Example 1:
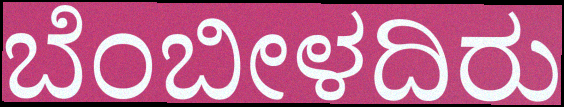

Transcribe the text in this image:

ಬೆಂಬೀಳದಿರು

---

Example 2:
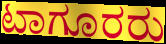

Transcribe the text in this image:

ಟಾಗೂರರು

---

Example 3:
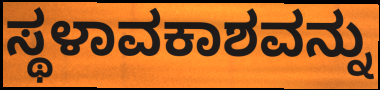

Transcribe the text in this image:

ಸ್ಥಳಾವಕಾಶವನ್ನು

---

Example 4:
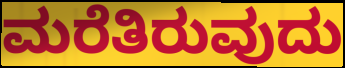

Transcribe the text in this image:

ಮರೆತಿರುವುದು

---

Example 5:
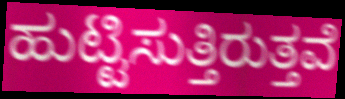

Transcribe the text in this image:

ಹುಟ್ಟಿಸುತ್ತಿರುತ್ತವೆ